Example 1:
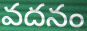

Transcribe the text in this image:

వదనం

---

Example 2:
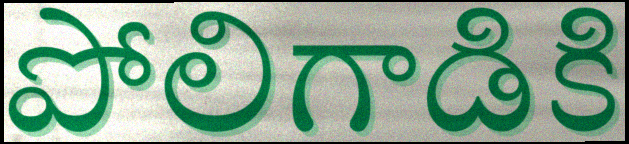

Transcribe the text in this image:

పోలిగాడికి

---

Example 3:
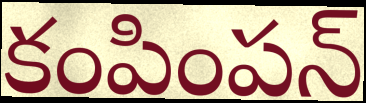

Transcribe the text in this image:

కంపింపన్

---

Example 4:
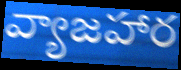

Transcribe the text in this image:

వ్యాజహార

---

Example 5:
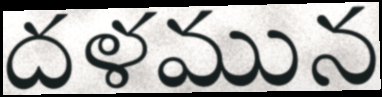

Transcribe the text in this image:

దళమున